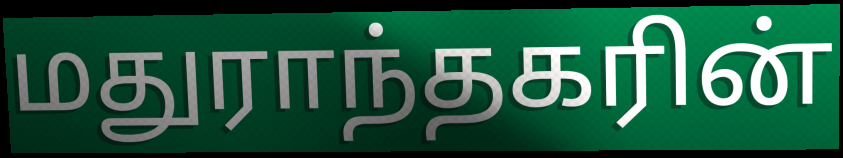
மதுராந்தகரின்